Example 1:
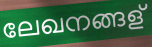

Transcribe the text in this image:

ലേഖനങ്ങള്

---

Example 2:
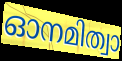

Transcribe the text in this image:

ഓനമിത്വാ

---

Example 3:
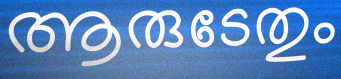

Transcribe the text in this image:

ആരുടേതും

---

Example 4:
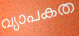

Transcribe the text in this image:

വ്യാപകത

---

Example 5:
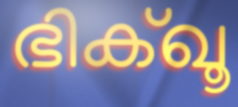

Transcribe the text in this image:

ഭിക്ഖൂ